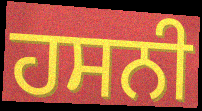
ਹਸਨੀ